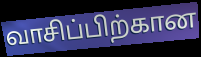
வாசிப்பிற்கான